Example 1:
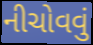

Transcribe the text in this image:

નીચોવવું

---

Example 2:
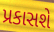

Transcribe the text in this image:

પ્રકાસશે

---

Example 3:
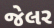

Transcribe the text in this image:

જેલર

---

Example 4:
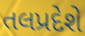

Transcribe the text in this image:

તલપ્રદેશે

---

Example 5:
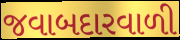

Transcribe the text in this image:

જવાબદારવાળી